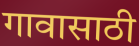
गावासाठी